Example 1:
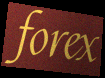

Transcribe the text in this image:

forex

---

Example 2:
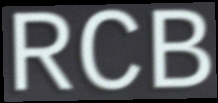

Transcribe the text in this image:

RCB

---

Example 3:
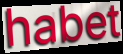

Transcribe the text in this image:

habet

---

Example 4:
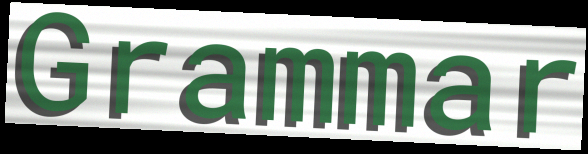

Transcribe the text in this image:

Grammar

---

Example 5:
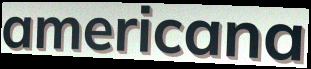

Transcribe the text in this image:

americana